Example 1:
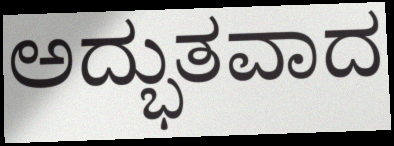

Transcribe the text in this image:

ಅದ್ಭುತವಾದ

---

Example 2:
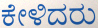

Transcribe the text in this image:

ಕೇಳಿದರು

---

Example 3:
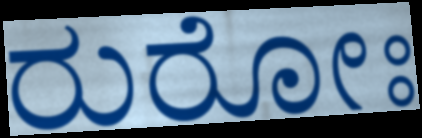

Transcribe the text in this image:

ರುರೋಃ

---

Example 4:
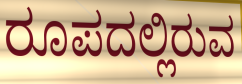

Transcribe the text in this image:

ರೂಪದಲ್ಲಿರುವ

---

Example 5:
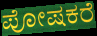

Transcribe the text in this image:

ಪೋಷಕರೆ